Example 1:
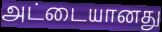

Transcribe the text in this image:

அட்டையானது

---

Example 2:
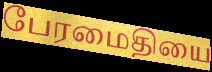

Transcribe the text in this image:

பேரமைதியை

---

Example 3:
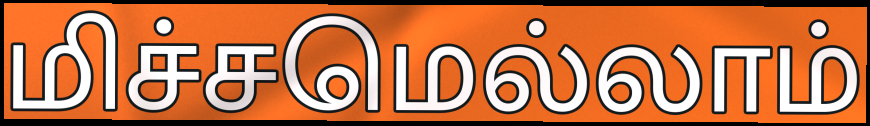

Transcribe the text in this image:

மிச்சமெல்லாம்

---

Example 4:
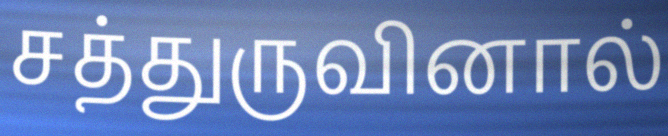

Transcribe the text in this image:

சத்துருவினால்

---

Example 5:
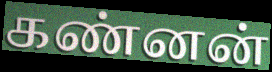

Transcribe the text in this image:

கண்னன்